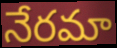
నేరమా